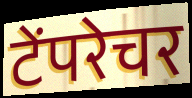
टेंपरेचर